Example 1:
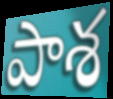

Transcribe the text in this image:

పాశ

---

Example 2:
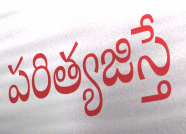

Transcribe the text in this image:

పరిత్యజిస్తే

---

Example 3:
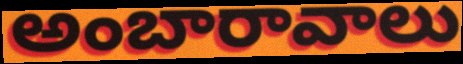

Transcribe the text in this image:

అంబారావాలు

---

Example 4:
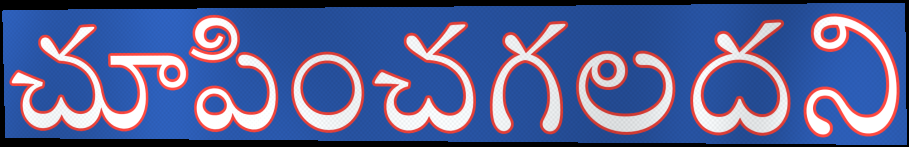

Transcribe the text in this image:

చూపించగలదని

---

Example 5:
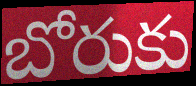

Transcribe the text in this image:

బోరుకు